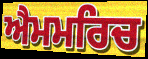
ਐਮਮਰਿਚ